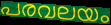
പരവലയം